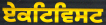
ਏਕਟਿਵਿਸਟ